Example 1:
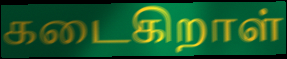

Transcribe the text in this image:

கடைகிறாள்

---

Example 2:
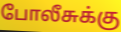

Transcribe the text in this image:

போலீசுக்கு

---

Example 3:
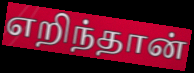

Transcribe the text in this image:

எறிந்தான்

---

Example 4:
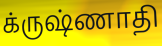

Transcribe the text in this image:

க்ருஷ்ணாதி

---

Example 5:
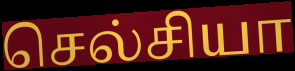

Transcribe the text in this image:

செல்சியா